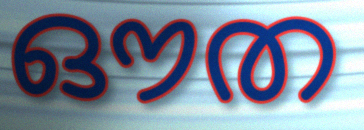
ഔത